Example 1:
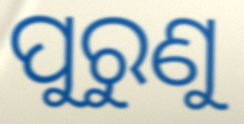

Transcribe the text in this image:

ପୁରୁଣୁ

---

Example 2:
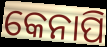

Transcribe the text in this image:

କେନାପି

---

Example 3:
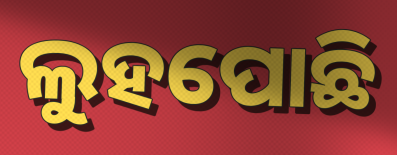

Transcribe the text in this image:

ଲୁହପୋଛି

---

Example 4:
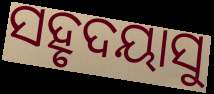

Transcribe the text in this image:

ସହୃଦୟାସୁ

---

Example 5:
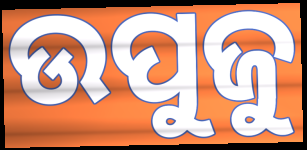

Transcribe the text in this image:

ଉପୁଜୁ